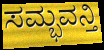
ಸಮ್ಭವನ್ತಿ